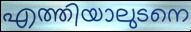
എത്തിയാലുടനെ